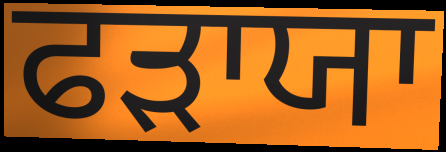
ਫੜਾਯਾ